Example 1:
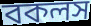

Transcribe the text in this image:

বকলস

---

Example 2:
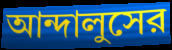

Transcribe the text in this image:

আন্দালুসের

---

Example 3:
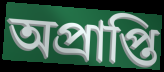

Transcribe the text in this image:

অপ্রাপ্তি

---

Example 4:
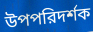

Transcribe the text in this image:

উপপরিদর্শক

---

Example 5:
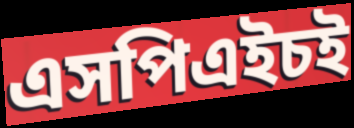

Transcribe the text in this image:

এসপিএইচই